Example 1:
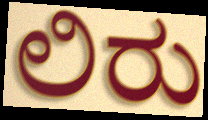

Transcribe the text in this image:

ಲಿರು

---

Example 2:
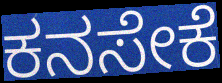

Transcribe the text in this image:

ಕನಸೇಕೆ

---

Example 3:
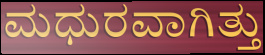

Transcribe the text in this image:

ಮಧುರವಾಗಿತ್ತು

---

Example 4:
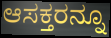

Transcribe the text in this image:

ಆಸಕ್ತರನ್ನೂ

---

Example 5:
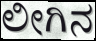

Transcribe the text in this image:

ಲೀಗಿನ